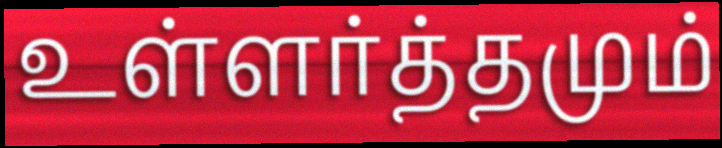
உள்ளர்த்தமும்